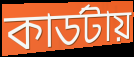
কার্ডটায়